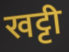
खट्टी